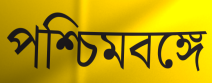
পশ্চিমবঙ্গে